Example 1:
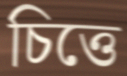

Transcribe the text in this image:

চিত্তে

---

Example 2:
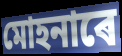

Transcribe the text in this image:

মোহনাৰে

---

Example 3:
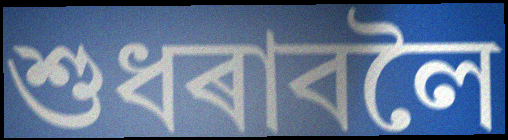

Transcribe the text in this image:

শুধৰাবলৈ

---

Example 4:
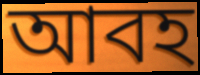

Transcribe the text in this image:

আবহ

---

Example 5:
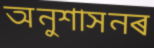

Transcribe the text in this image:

অনুশাসনৰ